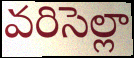
వరిసెల్లా